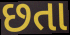
છતા